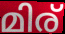
മിര്